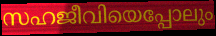
സഹജീവിയെപ്പോലും